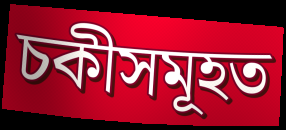
চকীসমূহত